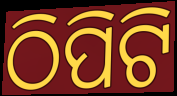
ଠିପିଟି